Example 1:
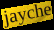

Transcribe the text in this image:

jayche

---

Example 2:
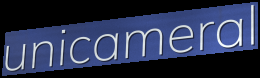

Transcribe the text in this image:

unicameral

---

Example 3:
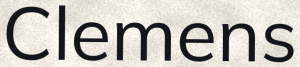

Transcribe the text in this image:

Clemens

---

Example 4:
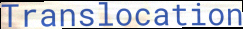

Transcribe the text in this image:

Translocation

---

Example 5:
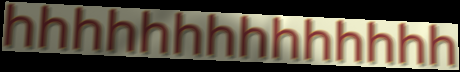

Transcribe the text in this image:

hhhhhhhhhhhhhh